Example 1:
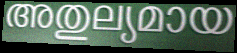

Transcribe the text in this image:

അതുല്യമായ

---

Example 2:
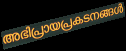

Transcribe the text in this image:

അഭിപ്രായപ്രകടനങ്ങൾ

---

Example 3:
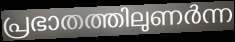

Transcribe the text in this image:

പ്രഭാതത്തിലുണർന്ന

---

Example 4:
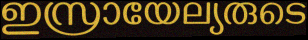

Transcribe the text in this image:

ഇസ്രായേല്യരുടെ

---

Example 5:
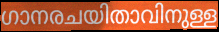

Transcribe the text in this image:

ഗാനരചയിതാവിനുള്ള